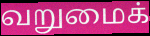
வறுமைக்